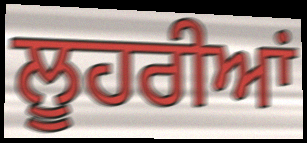
ਲੂਹਰੀਆਂ